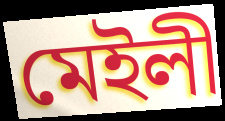
মেইলী